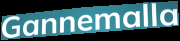
Gannemalla